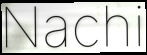
Nachi